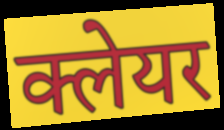
क्‍लेयर